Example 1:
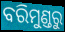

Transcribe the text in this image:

ବରିମୁଣ୍ଡରୁ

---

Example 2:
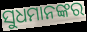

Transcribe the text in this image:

ସୁଧମାନଙ୍କର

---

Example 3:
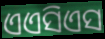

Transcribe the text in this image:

ଏଏସିଏସ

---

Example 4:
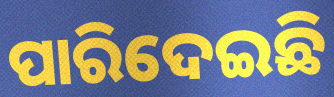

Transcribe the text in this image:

ପାରିଦେଇଛି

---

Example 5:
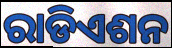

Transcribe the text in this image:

ରାଡିଏଶନ